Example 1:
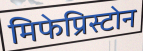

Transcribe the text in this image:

मिफेप्रिस्टोन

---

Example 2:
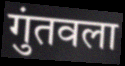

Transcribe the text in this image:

गुंतवला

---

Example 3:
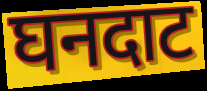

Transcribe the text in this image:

घनदाट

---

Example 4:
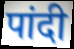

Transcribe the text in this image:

पांदी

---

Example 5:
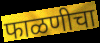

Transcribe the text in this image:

फाळणीचा